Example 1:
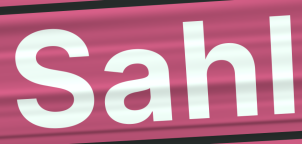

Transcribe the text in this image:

Sahl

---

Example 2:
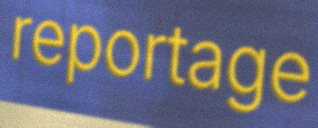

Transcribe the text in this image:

reportage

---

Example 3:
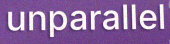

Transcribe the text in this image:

unparallel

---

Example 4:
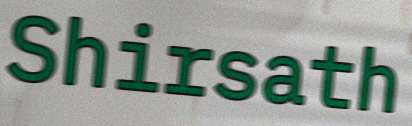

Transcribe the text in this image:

Shirsath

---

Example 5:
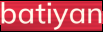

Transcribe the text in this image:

batiyan